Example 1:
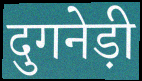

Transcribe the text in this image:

दुगनेड़ी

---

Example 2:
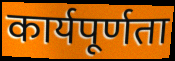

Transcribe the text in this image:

कार्यपूर्णता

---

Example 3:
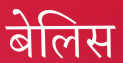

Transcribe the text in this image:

बेलिस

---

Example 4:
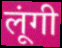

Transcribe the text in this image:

लूंगी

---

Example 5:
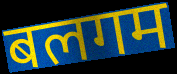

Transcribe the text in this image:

बलगम